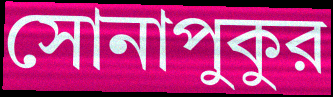
সোনাপুকুর